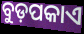
ବୁଡ଼ପକାଏ